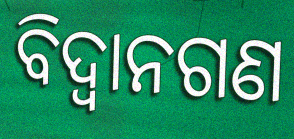
ବିଦ୍ଵାନଗଣ